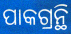
ପାକଗ୍ରନ୍ଥି